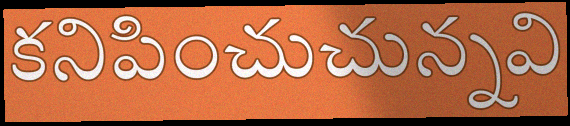
కనిపించుచున్నవి